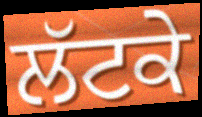
ਲੱਟਕੇ